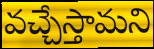
వచ్చేస్తామని